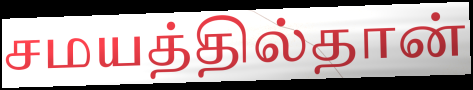
சமயத்தில்தான்